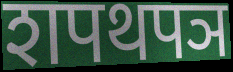
शपथपञ